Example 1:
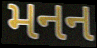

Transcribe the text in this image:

મનન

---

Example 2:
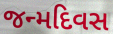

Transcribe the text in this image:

જન્મદિવસ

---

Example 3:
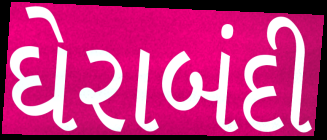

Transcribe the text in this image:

ઘેરાબંદી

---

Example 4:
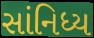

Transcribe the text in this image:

સાંનિધ્ય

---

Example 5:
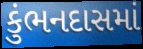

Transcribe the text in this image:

કુંભનદાસમાં